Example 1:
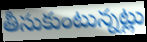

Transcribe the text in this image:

తీసుకుంటున్నట్లు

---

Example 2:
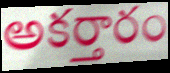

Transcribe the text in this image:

అకర్తారం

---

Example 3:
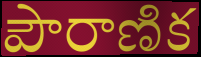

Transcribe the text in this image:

పౌరాణిక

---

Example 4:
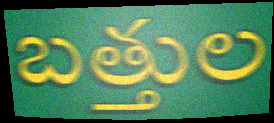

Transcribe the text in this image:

బత్తుల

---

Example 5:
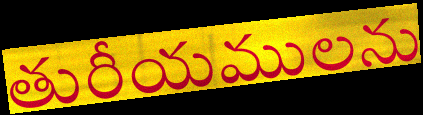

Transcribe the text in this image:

తురీయములను